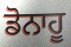
ਡੋਨਾਹੂ